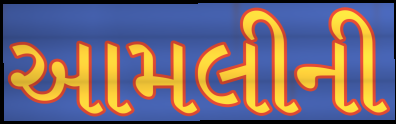
આમલીની